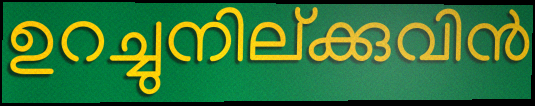
ഉറച്ചുനില്ക്കുവിൻ